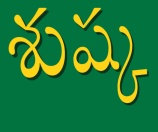
శుష్క